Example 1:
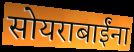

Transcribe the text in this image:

सोयराबाईंना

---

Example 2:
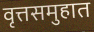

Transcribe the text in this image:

वृत्तसमुहात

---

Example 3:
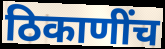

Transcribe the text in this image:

ठिकाणींच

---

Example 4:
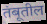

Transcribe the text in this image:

तंबूतील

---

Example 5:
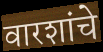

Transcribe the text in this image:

वारशांचे